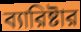
ব্যারিষ্টার